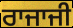
ਰਾਜਾਜੀ